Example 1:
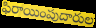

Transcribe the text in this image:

ఫిరాయింపుదారుల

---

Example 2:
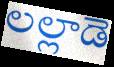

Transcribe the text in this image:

లల్లాడె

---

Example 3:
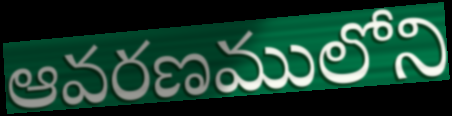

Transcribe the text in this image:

ఆవరణములోని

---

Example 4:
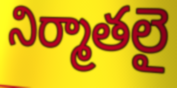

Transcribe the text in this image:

నిర్మాతలై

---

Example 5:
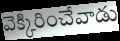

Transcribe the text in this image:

వెక్కిరించేవాడు